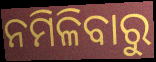
ନମିଳିବାରୁ